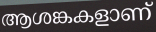
ആശങ്കകളാണ്